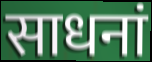
साधनां